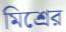
মিশ্রের